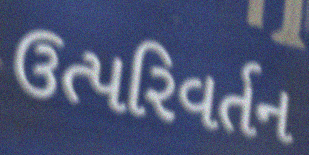
ઉત્પરિવર્તન